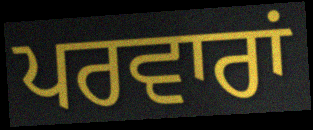
ਪਰਵਾਰਾਂ